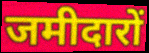
जमीदारों